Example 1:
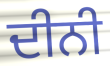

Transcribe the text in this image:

ਦੀਨੀ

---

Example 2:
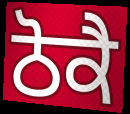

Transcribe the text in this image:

ਠੋਕੈ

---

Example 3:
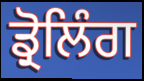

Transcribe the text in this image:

ਡ੍ਰੋਲਿੰਗ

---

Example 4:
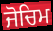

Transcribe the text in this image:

ਜੋਚਿਮ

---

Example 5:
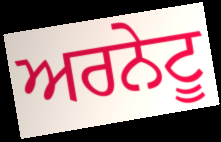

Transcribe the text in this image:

ਅਰਨੇਟੂ